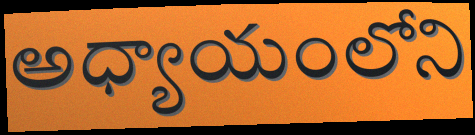
అధ్యాయంలోని